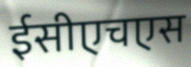
ईसीएचएस